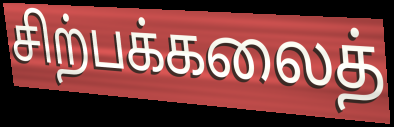
சிற்பக்கலைத்